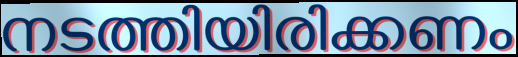
നടത്തിയിരിക്കണം